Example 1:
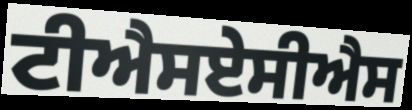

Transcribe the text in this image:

ਟੀਐਸਏਸੀਐਸ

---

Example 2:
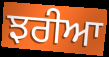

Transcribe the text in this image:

ਝਰੀਆ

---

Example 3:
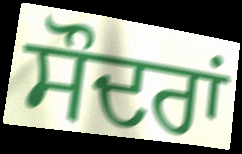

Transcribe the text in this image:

ਸੌਦਰਾਂ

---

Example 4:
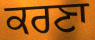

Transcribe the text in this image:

ਕਰਣਾ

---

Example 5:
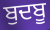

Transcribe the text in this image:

ਬੁਦਬੂ